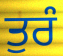
ਤੁਰੰ